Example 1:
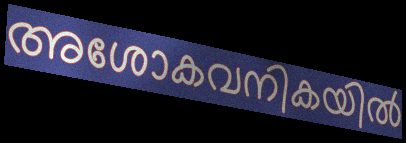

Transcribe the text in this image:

അശോകവനികയിൽ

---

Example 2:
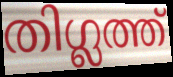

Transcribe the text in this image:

തിഗ്ലത്ത്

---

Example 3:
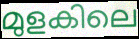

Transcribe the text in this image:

മുളകിലെ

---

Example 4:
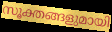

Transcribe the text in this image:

സൂക്തങ്ങളുമായി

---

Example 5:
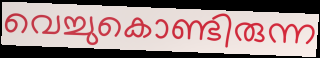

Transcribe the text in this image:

വെച്ചുകൊണ്ടിരുന്ന